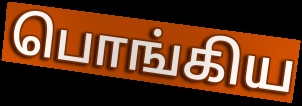
பொங்கிய